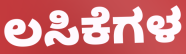
ಲಸಿಕೆಗಳ